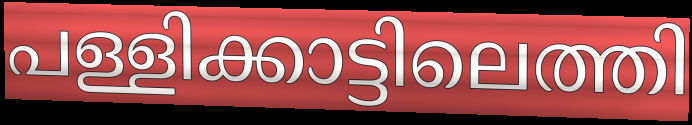
പള്ളിക്കാട്ടിലെത്തി